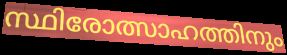
സ്ഥിരോത്സാഹത്തിനും